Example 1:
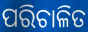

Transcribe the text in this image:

ପରିଚାଳିତ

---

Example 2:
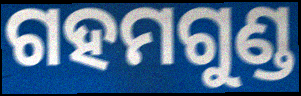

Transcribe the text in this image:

ଗହମଗୁଣ୍ଡ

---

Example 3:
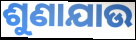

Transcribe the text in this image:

ଶୁଣାଯାଉ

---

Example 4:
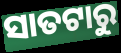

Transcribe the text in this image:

ସାତଟାରୁ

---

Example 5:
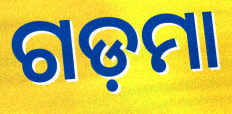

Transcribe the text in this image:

ଗଡ଼ମା